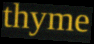
thyme